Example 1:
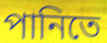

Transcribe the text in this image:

পানিতে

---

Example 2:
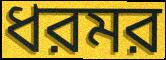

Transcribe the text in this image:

ধরমর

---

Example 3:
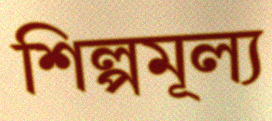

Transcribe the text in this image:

শিল্পমূল্য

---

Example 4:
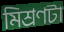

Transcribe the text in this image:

মিশ্রণটা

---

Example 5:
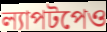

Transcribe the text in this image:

ল্যাপটপেও